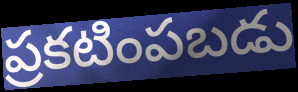
ప్రకటింపబడు